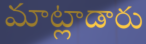
మాట్లాడారు